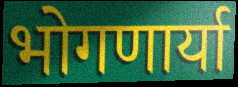
भोगणार्या